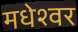
मधेश्वर